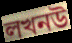
লখনউ